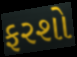
ફરશો